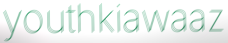
youthkiawaaz